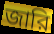
জারি